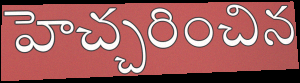
హెచ్చరించిన